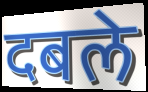
दबले